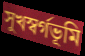
সুখস্বর্গভূমি